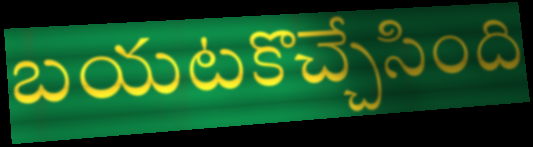
బయటకొచ్చేసింది